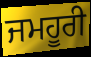
ਜਮਹੂਰੀ